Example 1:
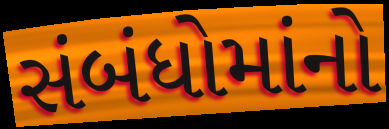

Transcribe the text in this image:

સંબંધોમાંનો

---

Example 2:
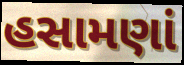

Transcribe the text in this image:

હસામણાં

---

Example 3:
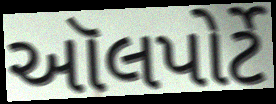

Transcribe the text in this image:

ઑલપોર્ટે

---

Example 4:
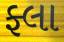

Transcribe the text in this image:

ફ્લા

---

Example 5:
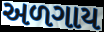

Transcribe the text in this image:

અળગાય